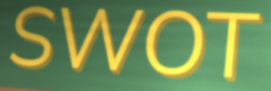
SWOT